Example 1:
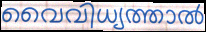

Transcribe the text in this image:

വൈവിധ്യത്താൽ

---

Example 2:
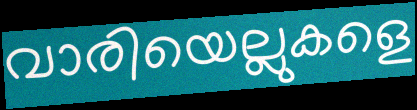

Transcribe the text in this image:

വാരിയെല്ലുകളെ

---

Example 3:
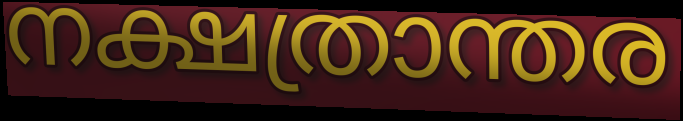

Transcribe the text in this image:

നക്ഷത്രാന്തര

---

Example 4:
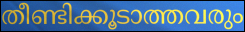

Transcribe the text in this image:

തീണ്ടിക്കൂടാത്തവരും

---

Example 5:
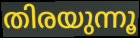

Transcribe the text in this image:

തിരയുന്നൂ